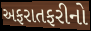
અફરાતફરીનો